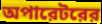
অপারেটরের